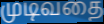
முடிவதை